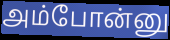
அம்போன்னு